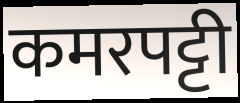
कमरपट्टी